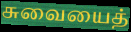
சுவையைத்